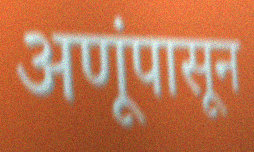
अणूंपासून